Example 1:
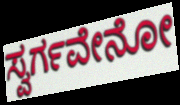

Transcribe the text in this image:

ಸ್ವರ್ಗವೇನೋ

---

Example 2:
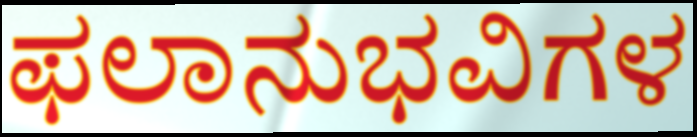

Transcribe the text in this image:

ಫಲಾನುಭವಿಗಳ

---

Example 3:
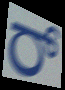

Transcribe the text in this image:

ರ್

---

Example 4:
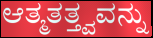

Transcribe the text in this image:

ಆತ್ಮತತ್ತ್ವವನ್ನು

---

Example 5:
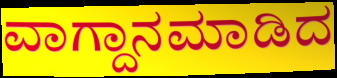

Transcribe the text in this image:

ವಾಗ್ದಾನಮಾಡಿದ